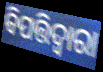
ବିପତ୍ତିଦ୍ୱାରା